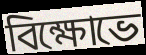
বিক্ষোভে